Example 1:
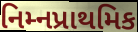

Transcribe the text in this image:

નિમ્નપ્રાથમિક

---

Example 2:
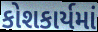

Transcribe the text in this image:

કોશકાર્યમાં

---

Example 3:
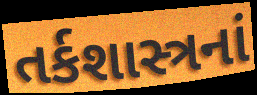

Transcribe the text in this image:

તર્કશાસ્ત્રનાં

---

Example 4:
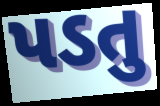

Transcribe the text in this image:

પડતુ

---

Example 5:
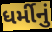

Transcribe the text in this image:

ધર્મીનું